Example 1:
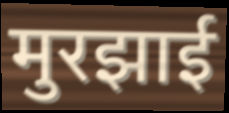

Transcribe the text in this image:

मुरझाई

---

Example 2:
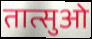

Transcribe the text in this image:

तात्सुओ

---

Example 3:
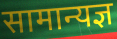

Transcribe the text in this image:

सामान्यज्ञ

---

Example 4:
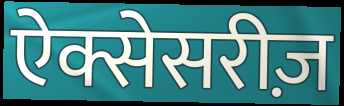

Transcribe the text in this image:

ऐक्सेसरीज़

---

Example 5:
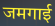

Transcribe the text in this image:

जमगाई